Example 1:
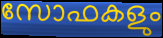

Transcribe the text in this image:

സോഫകളും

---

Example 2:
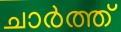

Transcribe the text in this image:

ചാർത്ത്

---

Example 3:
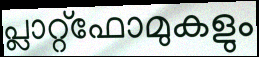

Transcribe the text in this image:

പ്ലാറ്റ്ഫോമുകളും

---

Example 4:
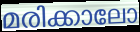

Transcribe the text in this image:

മരിക്കാലോ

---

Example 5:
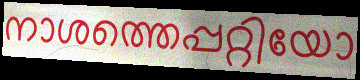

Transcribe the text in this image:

നാശത്തെപ്പറ്റിയോ